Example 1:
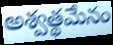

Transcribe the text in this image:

అశ్వత్థమేనం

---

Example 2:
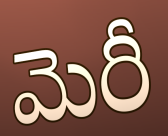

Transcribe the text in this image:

మెరీ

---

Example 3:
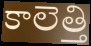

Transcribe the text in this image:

కాలెత్తి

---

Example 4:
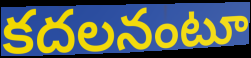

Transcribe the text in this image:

కదలనంటూ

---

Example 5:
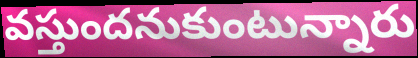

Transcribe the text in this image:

వస్తుందనుకుంటున్నారు